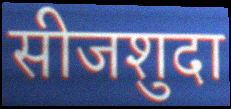
सीजशुदा